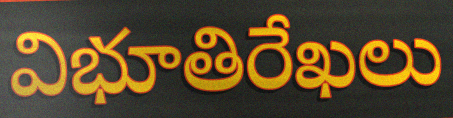
విభూతిరేఖలు